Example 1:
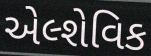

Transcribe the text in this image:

એલ્શેવિક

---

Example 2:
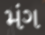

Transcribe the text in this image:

મંગ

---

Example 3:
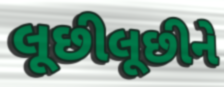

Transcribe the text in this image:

લૂછીલૂછીને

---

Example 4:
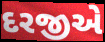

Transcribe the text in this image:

દરજીએ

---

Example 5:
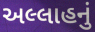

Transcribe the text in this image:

અલ્લાહનું